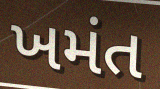
ખમંત